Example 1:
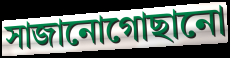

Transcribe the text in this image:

সাজানোগোছানো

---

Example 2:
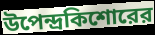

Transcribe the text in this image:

উপেন্দ্রকিশোরের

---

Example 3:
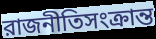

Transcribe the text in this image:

রাজনীতিসংক্রান্ত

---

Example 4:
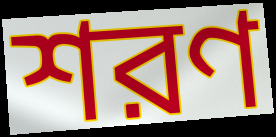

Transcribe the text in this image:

শরণ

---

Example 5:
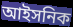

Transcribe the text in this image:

আইসনিক